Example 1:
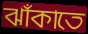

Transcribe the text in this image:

ঝাঁকাতে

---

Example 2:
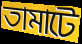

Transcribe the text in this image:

তামাটে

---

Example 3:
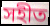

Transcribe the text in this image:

সহীত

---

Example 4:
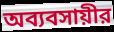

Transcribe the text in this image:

অব্যবসায়ীর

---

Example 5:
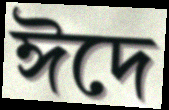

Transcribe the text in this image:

ঈদে